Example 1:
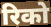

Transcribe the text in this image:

रिको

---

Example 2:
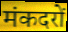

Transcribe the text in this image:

मंकदरों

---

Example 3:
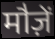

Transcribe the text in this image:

मौज़ें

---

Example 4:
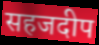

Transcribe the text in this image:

सहजदीप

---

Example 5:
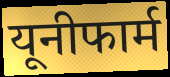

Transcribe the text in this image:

यूनीफार्म